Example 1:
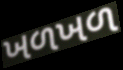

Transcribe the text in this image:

ખળખળ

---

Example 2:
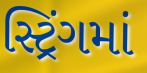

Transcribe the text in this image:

સ્ટ્રિંગમાં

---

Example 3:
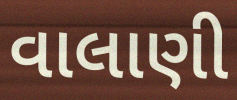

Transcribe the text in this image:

વાલાણી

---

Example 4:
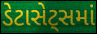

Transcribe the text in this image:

ડેટાસેટ્સમાં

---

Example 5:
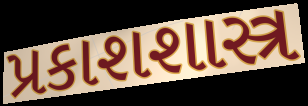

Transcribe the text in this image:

પ્રકાશશાસ્ત્ર